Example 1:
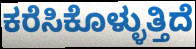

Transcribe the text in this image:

ಕರೆಸಿಕೊಳ್ಳುತ್ತಿದೆ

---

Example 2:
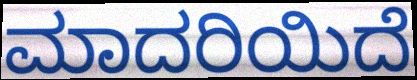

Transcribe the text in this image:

ಮಾದರಿಯಿದೆ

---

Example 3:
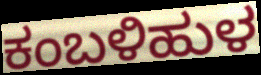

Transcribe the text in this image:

ಕಂಬಳಿಹುಳ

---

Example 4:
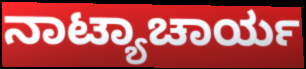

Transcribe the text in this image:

ನಾಟ್ಯಾಚಾರ್ಯ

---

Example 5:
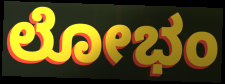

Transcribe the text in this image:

ಲೋಭಂ